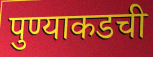
पुण्याकडची